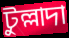
টুল্লাদা